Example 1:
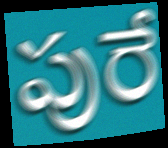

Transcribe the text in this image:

పురే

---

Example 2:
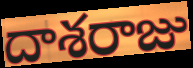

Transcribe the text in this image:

దాశరాజు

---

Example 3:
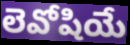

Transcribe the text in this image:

లెవోషియే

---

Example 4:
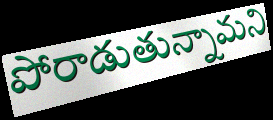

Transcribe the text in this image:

పోరాడుతున్నామని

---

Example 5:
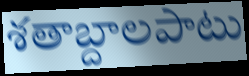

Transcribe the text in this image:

శతాబ్దాలపాటు